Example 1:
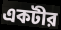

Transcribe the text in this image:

একটীর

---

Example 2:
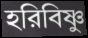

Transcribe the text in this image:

হরিবিষ্ণু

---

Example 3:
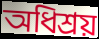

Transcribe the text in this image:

অধিশ্রয়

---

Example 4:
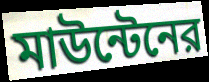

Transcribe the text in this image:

মাউন্টেনের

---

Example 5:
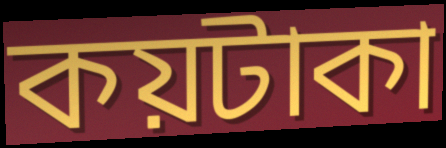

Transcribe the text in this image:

কয়টাকা